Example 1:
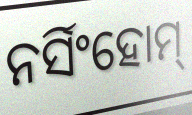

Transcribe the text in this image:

ନର୍ସିଂହୋମ୍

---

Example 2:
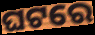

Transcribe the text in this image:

ଘଟରେ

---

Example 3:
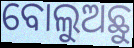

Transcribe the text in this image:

ବୋଲୁଅଛୁ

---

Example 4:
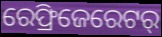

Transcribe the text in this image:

ରେଫ୍ରିଜେରେଟର୍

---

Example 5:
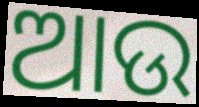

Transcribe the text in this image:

ଆଉ